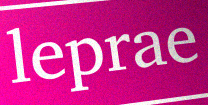
leprae